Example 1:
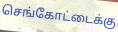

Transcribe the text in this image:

செங்கோட்டைக்கு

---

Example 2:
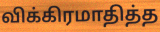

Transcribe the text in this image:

விக்கிரமாதித்த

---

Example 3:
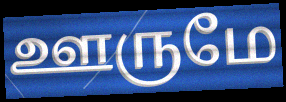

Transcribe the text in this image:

ஊருமே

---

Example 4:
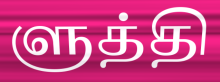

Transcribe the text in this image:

ளுத்தி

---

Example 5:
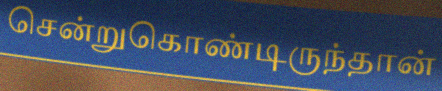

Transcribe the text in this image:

சென்றுகொண்டிருந்தான்